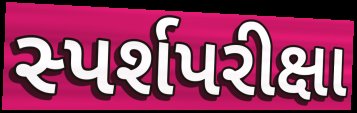
સ્પર્શપરીક્ષા